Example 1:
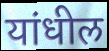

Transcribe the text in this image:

यांधील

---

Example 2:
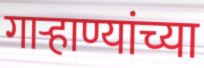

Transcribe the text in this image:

गाऱ्हाण्यांच्या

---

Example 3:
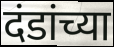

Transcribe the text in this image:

दंडांच्या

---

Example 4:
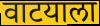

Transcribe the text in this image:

वाटयाला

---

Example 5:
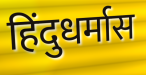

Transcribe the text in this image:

हिंदुधर्मास